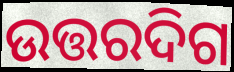
ଉତ୍ତରଦିଗ